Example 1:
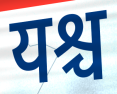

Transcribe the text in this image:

यश्च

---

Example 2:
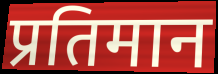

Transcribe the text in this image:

प्रतिमान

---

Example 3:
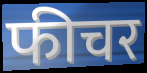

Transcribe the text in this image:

फीचर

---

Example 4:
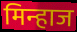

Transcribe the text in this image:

मिन्हाज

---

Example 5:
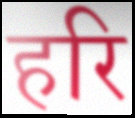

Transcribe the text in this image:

हरि